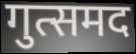
गुत्समद